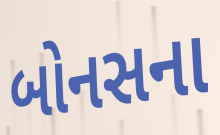
બોનસના